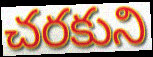
చరకుని